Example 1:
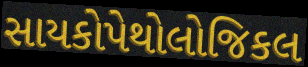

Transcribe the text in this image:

સાયકોપેથોલોજિકલ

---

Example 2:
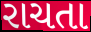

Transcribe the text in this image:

રાચતા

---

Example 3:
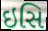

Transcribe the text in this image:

ઇસિ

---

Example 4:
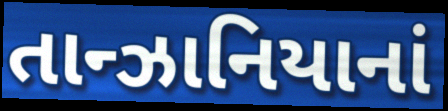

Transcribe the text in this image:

તાન્ઝાનિયાનાં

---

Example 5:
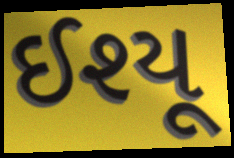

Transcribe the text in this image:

ઈશ્યૂ